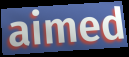
aimed